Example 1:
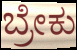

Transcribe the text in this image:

ಬ್ರೇಕು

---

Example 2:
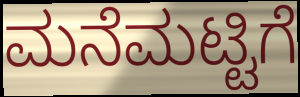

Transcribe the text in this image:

ಮನೆಮಟ್ಟಿಗೆ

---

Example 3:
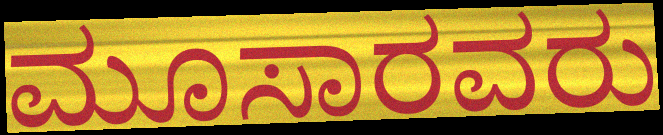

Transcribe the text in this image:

ಮೂಸಾರವರು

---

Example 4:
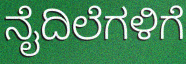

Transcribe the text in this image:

ನೈದಿಲೆಗಳಿಗೆ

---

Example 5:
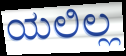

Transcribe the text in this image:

ಯಲಿಲ್ಲ